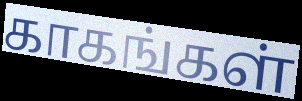
காகங்கள்